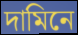
দামিনে